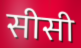
सीसी